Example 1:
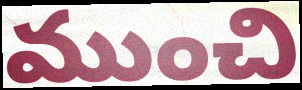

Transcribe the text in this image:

ముంచి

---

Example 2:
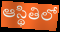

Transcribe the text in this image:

ఆస్థితిలో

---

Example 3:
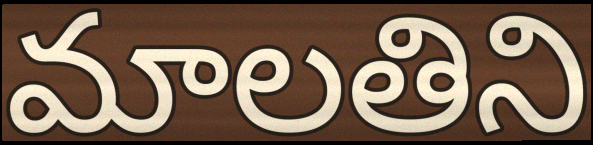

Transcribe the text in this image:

మాలతిని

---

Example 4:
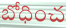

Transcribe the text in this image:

బోధించ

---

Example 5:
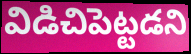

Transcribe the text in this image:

విడిచిపెట్టడని